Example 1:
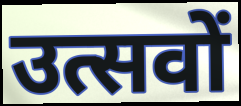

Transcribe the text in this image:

उत्सवों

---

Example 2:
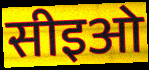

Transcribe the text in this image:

सीइओ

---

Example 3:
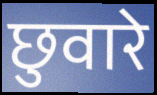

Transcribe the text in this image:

छुवारे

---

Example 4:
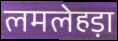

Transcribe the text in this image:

लमलेहड़ा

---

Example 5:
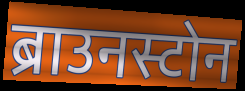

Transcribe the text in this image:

ब्राउनस्टोन